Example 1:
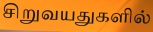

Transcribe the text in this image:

சிறுவயதுகளில்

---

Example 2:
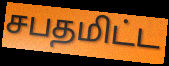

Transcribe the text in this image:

சபதமிட்ட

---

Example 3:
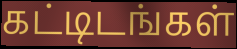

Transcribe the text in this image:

கட்டிடங்கள்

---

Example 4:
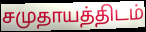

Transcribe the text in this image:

சமுதாயத்திடம்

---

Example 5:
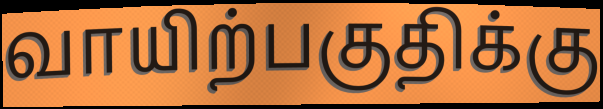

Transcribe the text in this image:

வாயிற்பகுதிக்கு